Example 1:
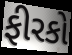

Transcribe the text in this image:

ફીરકો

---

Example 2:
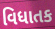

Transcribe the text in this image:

વિધાતક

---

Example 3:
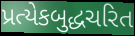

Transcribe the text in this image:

પ્રત્યેકબુદ્ધચરિત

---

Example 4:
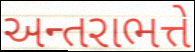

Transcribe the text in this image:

અન્તરાભત્તે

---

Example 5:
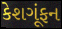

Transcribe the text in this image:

કેશગૂંફન